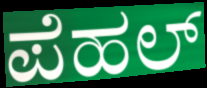
ಪೆಹಲ್